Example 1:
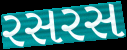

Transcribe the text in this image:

રસરસ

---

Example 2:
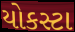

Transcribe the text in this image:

યોકસ્ટા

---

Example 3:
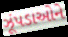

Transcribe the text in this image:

ઝૂંપડાઓને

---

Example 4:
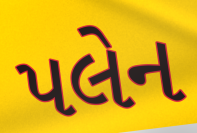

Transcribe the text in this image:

પલેન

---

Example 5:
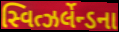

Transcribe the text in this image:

સ્વિત્ઝર્લેન્ડના